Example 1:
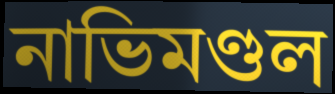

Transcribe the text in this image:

নাভিমণ্ডল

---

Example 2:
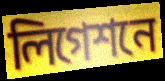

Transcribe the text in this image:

লিগেশনে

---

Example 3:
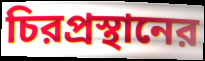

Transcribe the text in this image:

চিরপ্রস্থানের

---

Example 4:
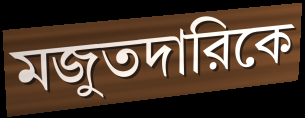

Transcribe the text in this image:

মজুতদারিকে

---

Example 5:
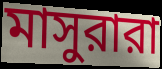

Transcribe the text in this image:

মাসুরারা